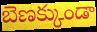
బెణక్కుండా